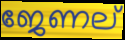
ജേണല്